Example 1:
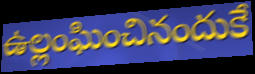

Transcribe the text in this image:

ఉల్లంఘించినందుకే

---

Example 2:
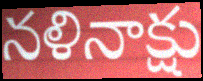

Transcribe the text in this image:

నళినాక్షు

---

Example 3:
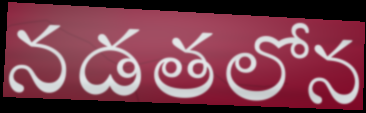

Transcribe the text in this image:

నడతలోన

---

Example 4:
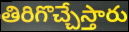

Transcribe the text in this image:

తిరిగొచ్చేస్తారు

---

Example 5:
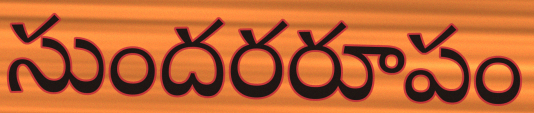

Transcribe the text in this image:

సుందరరూపం